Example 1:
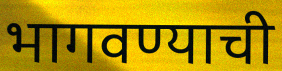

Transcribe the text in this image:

भागवण्याची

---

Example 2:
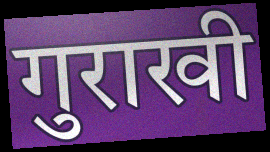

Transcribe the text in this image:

गुराखी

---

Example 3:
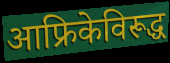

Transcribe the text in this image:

आफ्रिकेविरूद्ध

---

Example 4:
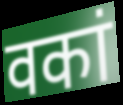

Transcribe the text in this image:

वकां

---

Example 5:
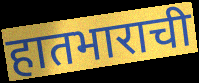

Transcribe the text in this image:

हातभाराची